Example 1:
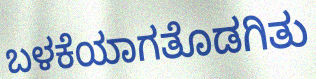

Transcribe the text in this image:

ಬಳಕೆಯಾಗತೊಡಗಿತು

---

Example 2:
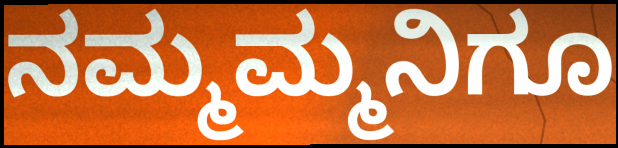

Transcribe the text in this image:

ನಮ್ಮಮ್ಮನಿಗೂ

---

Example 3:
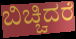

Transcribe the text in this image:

ಬಿಚ್ಚಿದರೆ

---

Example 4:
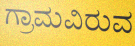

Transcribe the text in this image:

ಗ್ರಾಮವಿರುವ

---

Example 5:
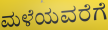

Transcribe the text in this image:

ಮಳೆಯವರೆಗೆ